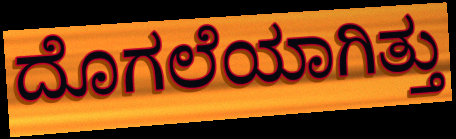
ದೊಗಲೆಯಾಗಿತ್ತು